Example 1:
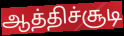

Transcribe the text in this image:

ஆத்திச்சூடி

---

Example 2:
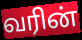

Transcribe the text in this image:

வரின்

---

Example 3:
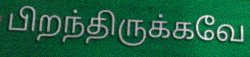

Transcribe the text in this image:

பிறந்திருக்கவே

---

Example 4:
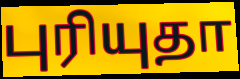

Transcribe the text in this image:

புரியுதா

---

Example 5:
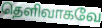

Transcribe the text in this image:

தெளிவாகவே